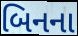
બિનના